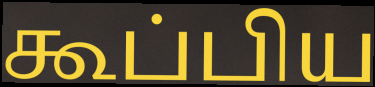
கூப்பிய